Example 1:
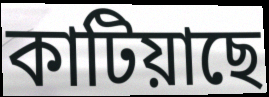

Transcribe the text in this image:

কাটিয়াছে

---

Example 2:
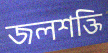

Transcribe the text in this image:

জলশক্তি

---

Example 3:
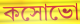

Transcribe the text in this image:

কসোভো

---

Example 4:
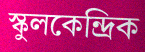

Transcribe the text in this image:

স্কুলকেন্দ্রিক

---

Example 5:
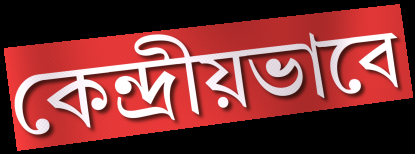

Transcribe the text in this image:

কেন্দ্রীয়ভাবে